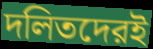
দলিতদেরই